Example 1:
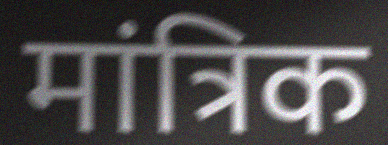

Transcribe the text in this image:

मांत्रिक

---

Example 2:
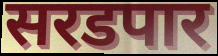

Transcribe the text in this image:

सरडपार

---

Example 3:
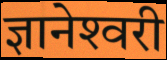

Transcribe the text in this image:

ज्ञानेश्‍वरी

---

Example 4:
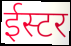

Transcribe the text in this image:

ईस्टर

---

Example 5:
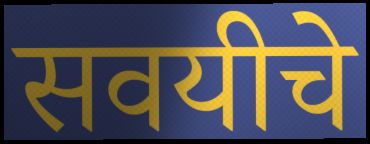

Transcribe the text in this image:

सवयीचे